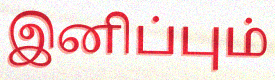
இனிப்பும்